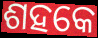
ଶହକେ